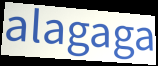
alagaga